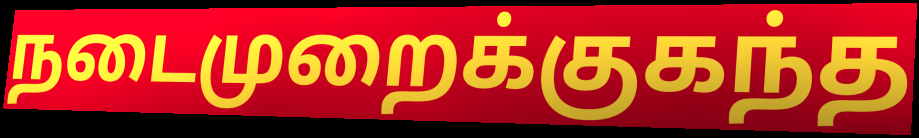
நடைமுறைக்குகந்த